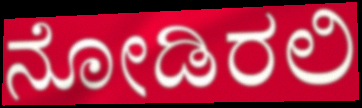
ನೋಡಿರಲಿ